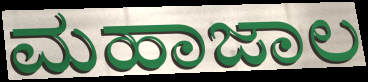
ಮಹಾಜಾಲ